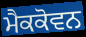
ਮੈਕਕੋਵਨ